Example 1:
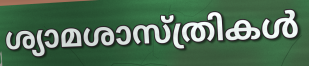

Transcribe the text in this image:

ശ്യാമശാസ്ത്രികൾ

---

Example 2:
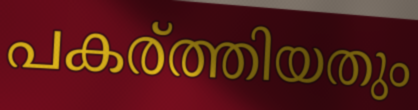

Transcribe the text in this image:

പകര്ത്തിയതും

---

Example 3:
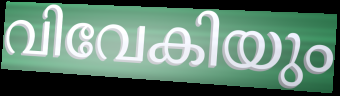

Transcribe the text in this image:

വിവേകിയും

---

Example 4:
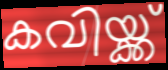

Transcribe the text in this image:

കവിയ്ക്ക്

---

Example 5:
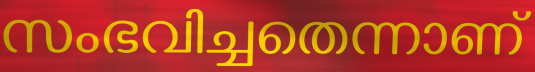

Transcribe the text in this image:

സംഭവിച്ചതെന്നാണ്